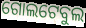
ଗୋଲଟେବୁଲ